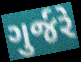
ગુર્જરે